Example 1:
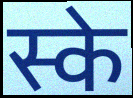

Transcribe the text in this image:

स्के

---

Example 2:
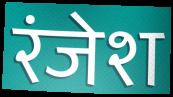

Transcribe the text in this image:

रंजेश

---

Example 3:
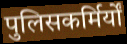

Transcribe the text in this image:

पुलिसकर्मिर्यों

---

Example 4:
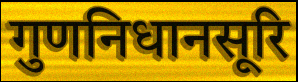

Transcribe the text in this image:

गुणनिधानसूरि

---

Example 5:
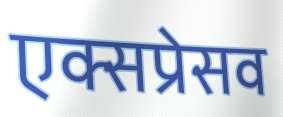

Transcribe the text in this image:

एक्सप्रेसव